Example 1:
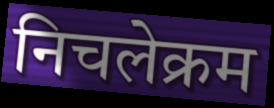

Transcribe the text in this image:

निचलेक्रम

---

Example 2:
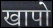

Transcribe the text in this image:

खापो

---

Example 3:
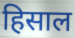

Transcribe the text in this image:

हिसाल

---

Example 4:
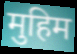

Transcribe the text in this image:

मुहिम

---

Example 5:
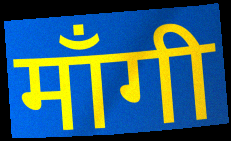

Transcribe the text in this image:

माँगी